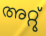
അറ്റു്